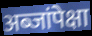
अब्जांपेक्षा